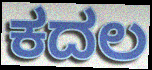
ಕದಲ